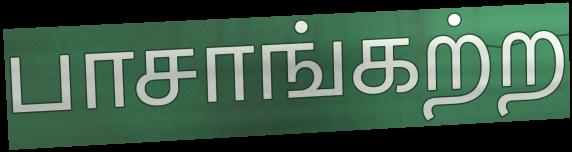
பாசாங்கற்ற